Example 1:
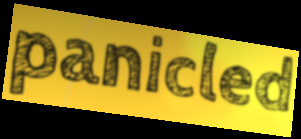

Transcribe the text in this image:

panicled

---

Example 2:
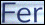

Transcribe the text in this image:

Fer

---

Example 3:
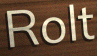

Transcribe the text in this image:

Rolt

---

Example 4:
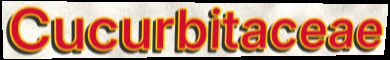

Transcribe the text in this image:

Cucurbitaceae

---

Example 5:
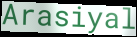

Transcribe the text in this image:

Arasiyal